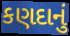
કણદાનું